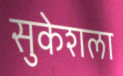
सुकेशला